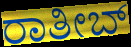
ರಾತೀಬ್